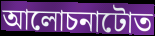
আলোচনাটোত